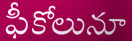
ఫీకోలునూ